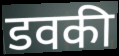
डवकी